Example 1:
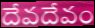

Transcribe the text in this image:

దేవదేవం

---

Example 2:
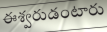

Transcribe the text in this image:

ఈశ్వరుడంటారు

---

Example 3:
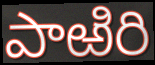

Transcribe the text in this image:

పాఱిరి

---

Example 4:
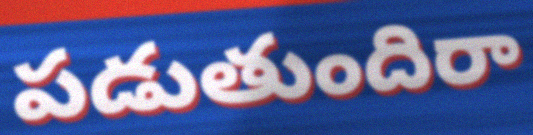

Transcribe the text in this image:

పడుతుందిరా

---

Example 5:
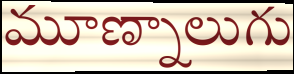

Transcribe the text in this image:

మూణ్నాలుగు